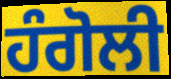
ਹੰਗੋਲੀ